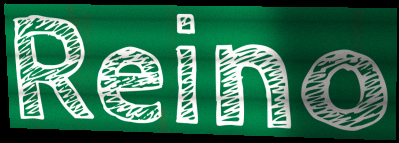
Reino